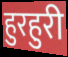
हुरहुरी